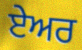
ਏੇਅਰ